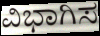
ವಿಭಾಗಿಸ